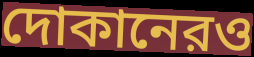
দোকানেরও